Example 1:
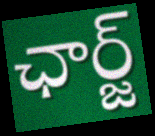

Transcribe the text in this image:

ఛార్జ్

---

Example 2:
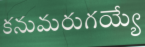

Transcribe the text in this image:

కనుమరుగయ్యే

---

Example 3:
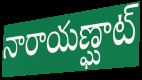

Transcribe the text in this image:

నారాయణ్ఘాట్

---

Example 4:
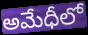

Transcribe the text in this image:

అమేధీలో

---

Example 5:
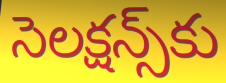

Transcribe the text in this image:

సెలక్షన్స్‌కు